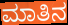
ಮಾತಿನ